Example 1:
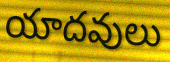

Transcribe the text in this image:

యాదవులు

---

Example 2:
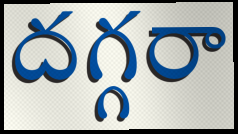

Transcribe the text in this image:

దగ్గరా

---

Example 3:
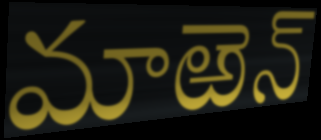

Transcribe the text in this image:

మాఱెన్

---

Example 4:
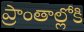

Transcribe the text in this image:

ప్రాంతాల్లోకి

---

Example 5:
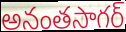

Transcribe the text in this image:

అనంతసాగర్